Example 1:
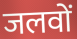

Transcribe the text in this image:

जलवों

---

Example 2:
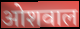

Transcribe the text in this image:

ओशवाल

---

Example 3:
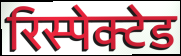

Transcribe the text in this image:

रिस्पेक्टेड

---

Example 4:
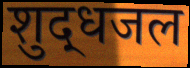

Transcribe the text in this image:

शुद्धजल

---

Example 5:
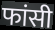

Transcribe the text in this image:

फांसी